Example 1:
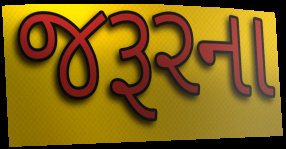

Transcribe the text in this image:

જરૂરના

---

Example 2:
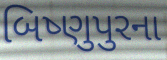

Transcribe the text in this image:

બિષ્ણુપુરના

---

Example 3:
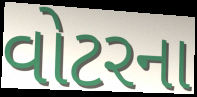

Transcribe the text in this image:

વોટરના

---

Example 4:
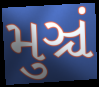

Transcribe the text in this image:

મુઞ્ચં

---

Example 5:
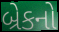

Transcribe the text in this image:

બ્રેકનો